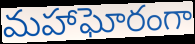
మహాఘోరంగా